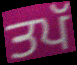
ਤਪੱ